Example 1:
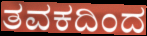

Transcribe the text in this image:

ತವಕದಿಂದ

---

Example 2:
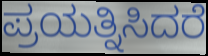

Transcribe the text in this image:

ಪ್ರಯತ್ನಿಸಿದರೆ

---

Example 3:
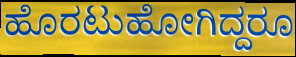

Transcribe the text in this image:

ಹೊರಟುಹೋಗಿದ್ದರೂ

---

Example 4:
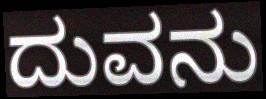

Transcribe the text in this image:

ದುವನು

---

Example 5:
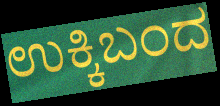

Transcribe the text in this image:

ಉಕ್ಕಿಬಂದ